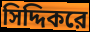
সিদ্দিকরে